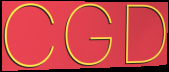
CGD